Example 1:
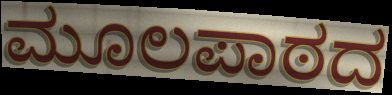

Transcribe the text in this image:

ಮೂಲಪಾಠದ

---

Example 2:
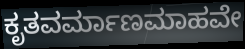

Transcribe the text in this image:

ಕೃತವರ್ಮಾಣಮಾಹವೇ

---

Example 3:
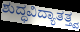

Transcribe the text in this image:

ಶುದ್ಧವಿದ್ಯಾತತ್ತ್ವ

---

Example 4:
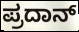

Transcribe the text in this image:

ಪ್ರದಾನ್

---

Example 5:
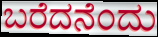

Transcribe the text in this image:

ಬರೆದನೆಂದು